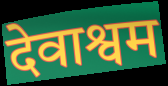
देवाश्वम